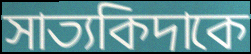
সাত্যকিদাকে